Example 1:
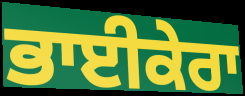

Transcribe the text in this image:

ਭਾਈਕੇਰਾ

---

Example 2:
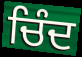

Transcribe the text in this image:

ਚਿੰਦ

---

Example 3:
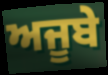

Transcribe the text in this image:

ਅਜੂਬੇ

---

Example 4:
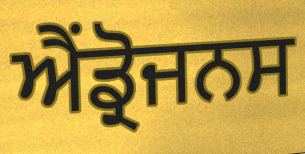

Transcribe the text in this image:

ਐਂਡ੍ਰੋਜਨਸ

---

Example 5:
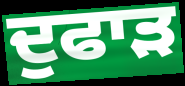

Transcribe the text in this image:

ਦੁਫਾੜ